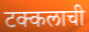
टक्कलाची